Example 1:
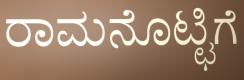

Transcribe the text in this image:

ರಾಮನೊಟ್ಟಿಗೆ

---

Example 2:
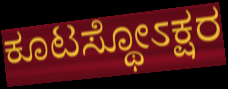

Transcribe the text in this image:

ಕೂಟಸ್ಥೋಽಕ್ಷರ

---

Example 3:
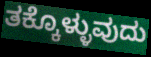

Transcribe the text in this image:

ತಕ್ಕೊಳ್ಳುವುದು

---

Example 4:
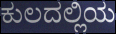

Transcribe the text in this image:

ಕುಲದಲ್ಲಿಯ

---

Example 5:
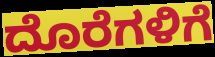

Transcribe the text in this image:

ದೊರೆಗಳಿಗೆ